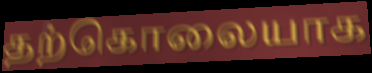
தற்கொலையாக